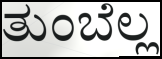
ತುಂಬೆಲ್ಲ